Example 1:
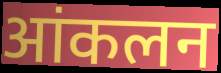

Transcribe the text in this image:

आंकलन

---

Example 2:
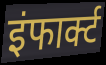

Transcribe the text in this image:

इंफार्क्ट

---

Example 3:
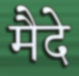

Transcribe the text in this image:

मैदे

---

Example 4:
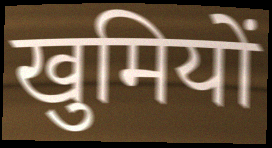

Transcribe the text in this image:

खुमियों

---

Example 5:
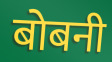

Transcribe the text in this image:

बोबनी